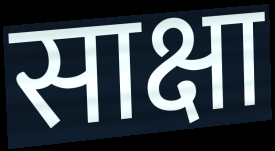
साक्षा